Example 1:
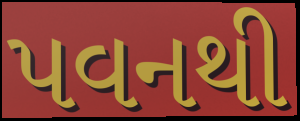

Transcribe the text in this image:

પવનથી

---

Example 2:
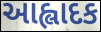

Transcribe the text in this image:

આહ્લાદક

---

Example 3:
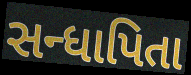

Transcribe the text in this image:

સન્ધાપિતા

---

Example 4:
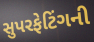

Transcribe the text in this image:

સુપરફેટિંગની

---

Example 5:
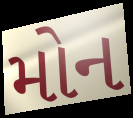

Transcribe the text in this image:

મોન